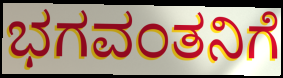
ಭಗವಂತನಿಗೆ